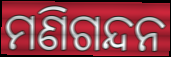
ମଣିଗନ୍ଦନ